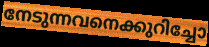
നേടുന്നവനെക്കുറിച്ചോ